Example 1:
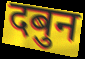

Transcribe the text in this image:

दबुन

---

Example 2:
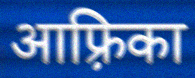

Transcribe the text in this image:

आफ़्रिका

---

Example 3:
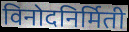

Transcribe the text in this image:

विनोदनिर्मिती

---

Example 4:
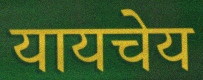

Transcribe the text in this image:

यायचेय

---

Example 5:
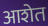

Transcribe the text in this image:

आशेत